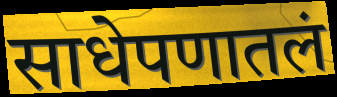
साधेपणातलं